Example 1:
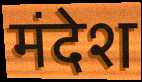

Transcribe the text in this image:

मंदेश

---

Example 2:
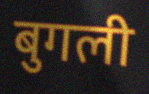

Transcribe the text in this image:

बुगली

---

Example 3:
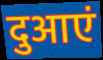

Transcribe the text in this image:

दुआएं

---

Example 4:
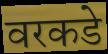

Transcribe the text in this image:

वरकडे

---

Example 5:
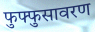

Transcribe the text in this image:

फुफ्फुसावरण